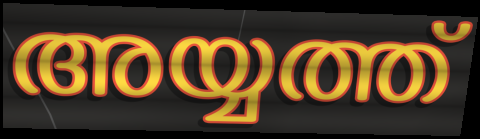
അയ്യത്ത്